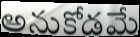
అనుకోడమే